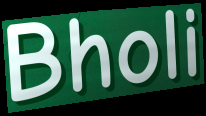
Bholi